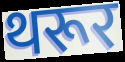
थरूर